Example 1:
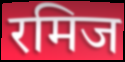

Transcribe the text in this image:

रमिज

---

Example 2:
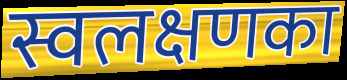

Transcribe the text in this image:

स्वलक्षणका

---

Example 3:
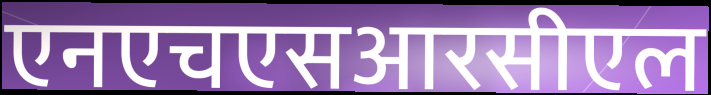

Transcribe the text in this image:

एनएचएसआरसीएल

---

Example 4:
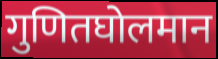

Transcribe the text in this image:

गुणितघोलमान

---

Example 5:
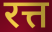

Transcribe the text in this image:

रत्त